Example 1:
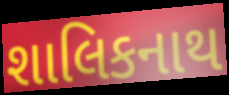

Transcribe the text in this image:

શાલિકનાથ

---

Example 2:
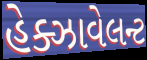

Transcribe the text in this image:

હેક્ઝાવેલન્ટ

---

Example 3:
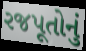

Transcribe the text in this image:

રજપૂતોનું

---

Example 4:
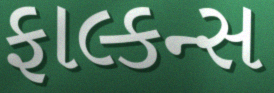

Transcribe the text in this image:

ફાલ્કન્સ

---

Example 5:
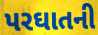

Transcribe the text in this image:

પરઘાતની